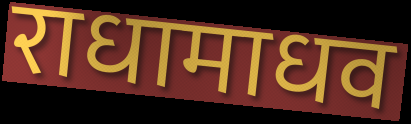
राधामाधव